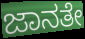
ಜಾನತೇ